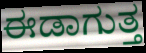
ಈಡಾಗುತ್ತ